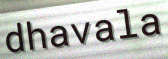
dhavala